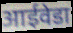
आईवेडा